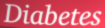
Diabetes